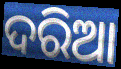
ଦରିଆ